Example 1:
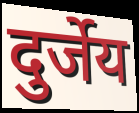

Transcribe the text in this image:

दुर्जेय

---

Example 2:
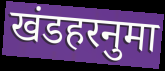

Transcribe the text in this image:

खंडहरनुमा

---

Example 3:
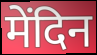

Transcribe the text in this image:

मेंदिन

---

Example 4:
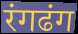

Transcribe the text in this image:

रंगढंग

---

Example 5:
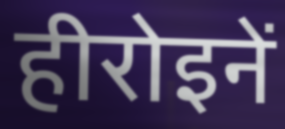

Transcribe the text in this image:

हीरोइनें